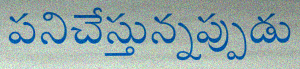
పనిచేస్తున్నప్పుడు